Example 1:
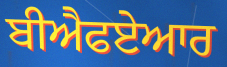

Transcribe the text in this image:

ਬੀਐਫਏਆਰ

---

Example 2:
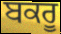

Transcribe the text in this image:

ਬਕਰੂ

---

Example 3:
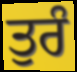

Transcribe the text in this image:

ਤੁਰੰ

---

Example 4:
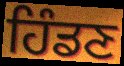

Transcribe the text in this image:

ਹਿੰਡਣ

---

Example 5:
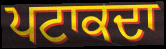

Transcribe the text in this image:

ਪਟਾਕਦਾ